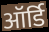
ऑर्डि